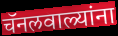
चॅनलवाल्यांना